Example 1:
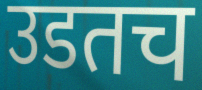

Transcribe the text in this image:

उडतच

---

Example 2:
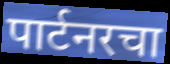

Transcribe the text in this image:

पार्टनरचा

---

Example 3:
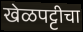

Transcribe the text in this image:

खेळपट्टीचा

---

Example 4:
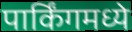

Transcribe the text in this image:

पार्किंगमध्ये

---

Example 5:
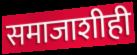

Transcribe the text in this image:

समाजाशीही